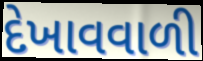
દેખાવવાળી